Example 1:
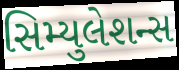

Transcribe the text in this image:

સિમ્યુલેશન્સ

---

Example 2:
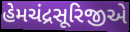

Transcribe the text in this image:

હેમચંદ્રસૂરિજીએ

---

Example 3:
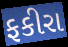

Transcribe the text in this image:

ફકીરા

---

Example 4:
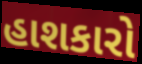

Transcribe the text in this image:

હાશકારો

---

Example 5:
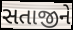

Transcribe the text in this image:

સતાજીને